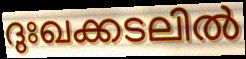
ദുഃഖക്കടലിൽ